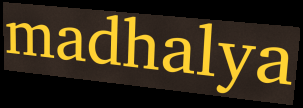
madhalya